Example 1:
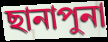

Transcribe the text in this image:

ছানাপুনা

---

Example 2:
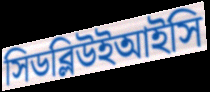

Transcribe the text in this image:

সিডব্লিউইআইসি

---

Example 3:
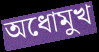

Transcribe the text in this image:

অধোমুখ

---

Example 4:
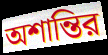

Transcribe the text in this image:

অশান্তির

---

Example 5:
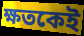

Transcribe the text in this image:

ক্ষতকেই